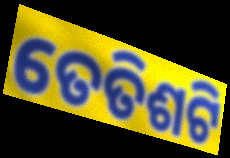
ତେତିଶଟି